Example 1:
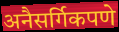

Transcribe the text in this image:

अनैसर्गिकपणे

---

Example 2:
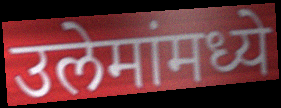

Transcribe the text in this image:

उलेमांमध्ये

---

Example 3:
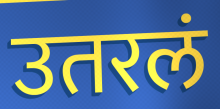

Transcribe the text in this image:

उतरलं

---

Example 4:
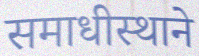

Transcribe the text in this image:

समाधीस्थाने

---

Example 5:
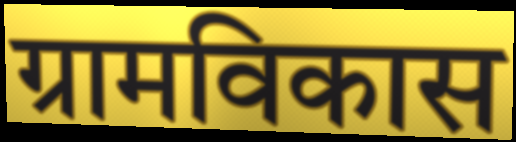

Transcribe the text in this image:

ग्रामविकास